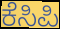
ಕೆಸಿಪಿ